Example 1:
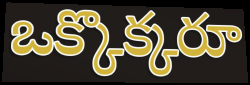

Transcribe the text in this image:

ఒక్కొక్కరూ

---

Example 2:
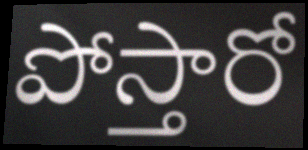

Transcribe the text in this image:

పోస్తారో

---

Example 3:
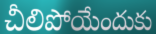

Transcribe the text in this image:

చీలిపోయేందుకు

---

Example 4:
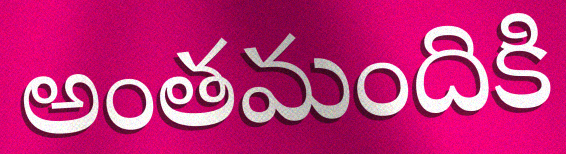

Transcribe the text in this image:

అంతమందికి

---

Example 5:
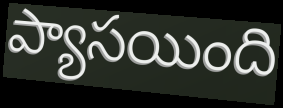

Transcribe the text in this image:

ప్యాసయింది